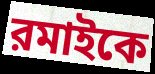
রমাইকে